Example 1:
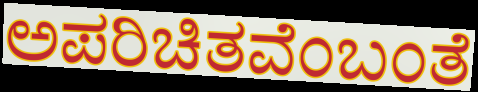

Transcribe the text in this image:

ಅಪರಿಚಿತವೆಂಬಂತೆ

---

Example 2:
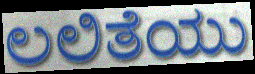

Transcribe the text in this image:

ಲಲಿತೆಯು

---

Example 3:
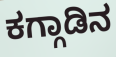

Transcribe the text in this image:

ಕಗ್ಗಾಡಿನ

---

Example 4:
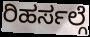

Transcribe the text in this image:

ರಿಹರ್ಸಲ್ಗೆ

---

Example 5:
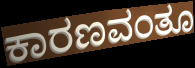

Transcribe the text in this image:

ಕಾರಣವಂತೂ